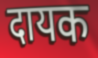
दायक